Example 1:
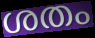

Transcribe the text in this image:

ശതം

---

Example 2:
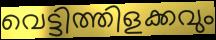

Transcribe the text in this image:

വെട്ടിത്തിളക്കവും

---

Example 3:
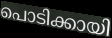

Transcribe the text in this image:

പൊടിക്കായി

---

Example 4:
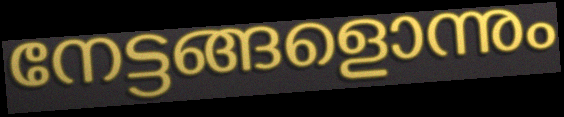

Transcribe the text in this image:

നേട്ടങ്ങളൊന്നും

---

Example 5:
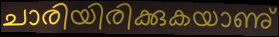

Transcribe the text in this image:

ചാരിയിരിക്കുകയാണു്